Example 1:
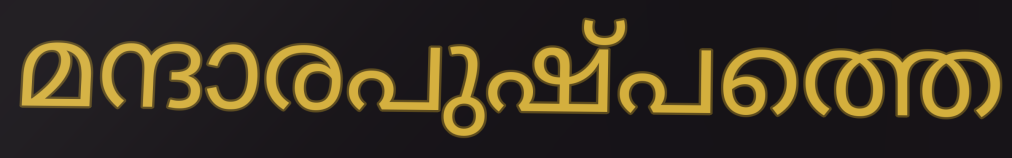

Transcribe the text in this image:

മന്ദാരപുഷ്പത്തെ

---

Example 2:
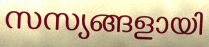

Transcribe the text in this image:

സസ്യങ്ങളായി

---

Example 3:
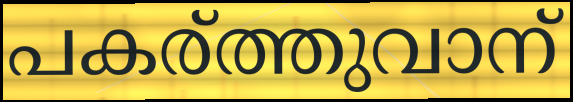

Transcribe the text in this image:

പകര്ത്തുവാന്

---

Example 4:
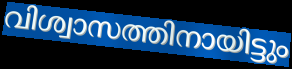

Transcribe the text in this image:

വിശ്വാസത്തിനായിട്ടും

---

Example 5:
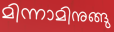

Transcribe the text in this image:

മിന്നാമിനുങ്ങു